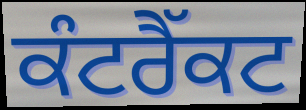
ਕੰਟਰੈੱਕਟ